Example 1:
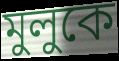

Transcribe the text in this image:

মুলুকে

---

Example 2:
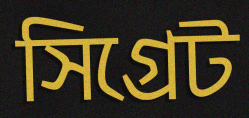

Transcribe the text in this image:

সিগ্রেট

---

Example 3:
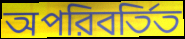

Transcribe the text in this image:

অপরিবর্তিত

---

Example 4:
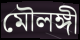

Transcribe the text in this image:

মৌলঙ্গী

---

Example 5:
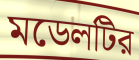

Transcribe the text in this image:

মডেলটির